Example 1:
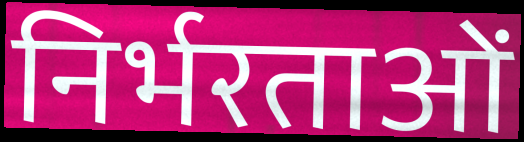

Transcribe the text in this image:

निर्भरताओं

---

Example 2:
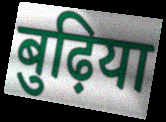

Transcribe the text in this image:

बुढ़िया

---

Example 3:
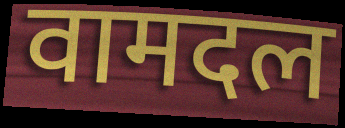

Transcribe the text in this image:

वामदल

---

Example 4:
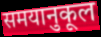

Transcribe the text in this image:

समयानुकूल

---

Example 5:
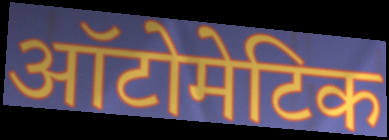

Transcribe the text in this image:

ऑटोमेटिक